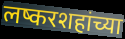
लष्करशहांच्या